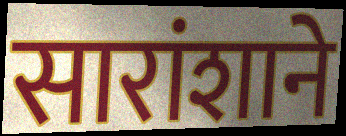
सारांशाने